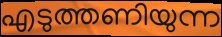
എടുത്തണിയുന്ന